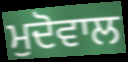
ਮੁਦੋਵਾਲ